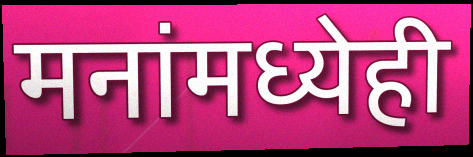
मनांमध्येही